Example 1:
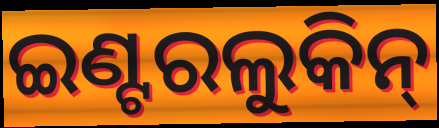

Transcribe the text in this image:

ଇଣ୍ଟରଲୁକିନ୍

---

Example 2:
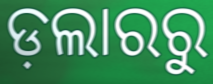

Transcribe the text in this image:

ଡ଼ଲାରରୁ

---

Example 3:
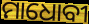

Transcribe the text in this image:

ମାଧୋବୀ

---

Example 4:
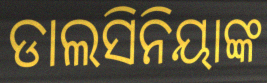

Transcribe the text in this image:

ଡାଲସିନିୟାଙ୍କ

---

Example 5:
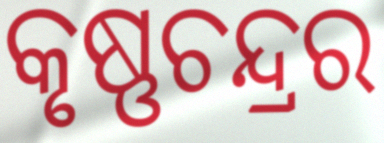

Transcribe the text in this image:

କୃଷ୍ଣଚନ୍ଦ୍ରର